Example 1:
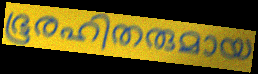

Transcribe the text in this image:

ഭൂരഹിതരുമായ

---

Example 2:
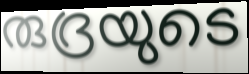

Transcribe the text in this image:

രുദ്രയുടെ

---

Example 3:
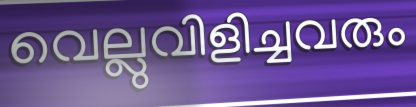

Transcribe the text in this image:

വെല്ലുവിളിച്ചവരും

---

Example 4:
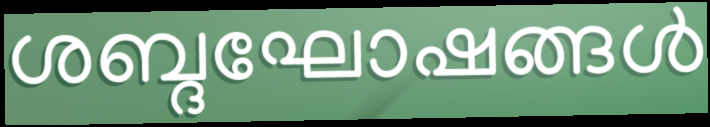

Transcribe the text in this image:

ശബ്ദഘോഷങ്ങൾ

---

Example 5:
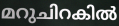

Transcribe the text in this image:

മറുചിറകിൽ